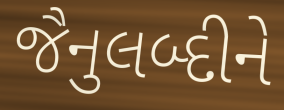
જૈનુલબ્દીને